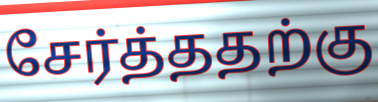
சேர்த்ததற்கு